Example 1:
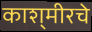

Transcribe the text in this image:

काश्मीरचे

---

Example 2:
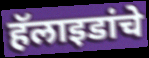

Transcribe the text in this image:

हॅलाइडांचे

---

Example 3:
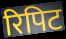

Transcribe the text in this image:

रिपिट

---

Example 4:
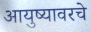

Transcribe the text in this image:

आयुष्यावरचे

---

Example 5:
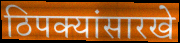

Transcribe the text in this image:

ठिपक्यांसारखे